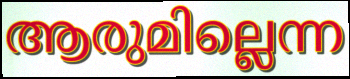
ആരുമില്ലെന്ന